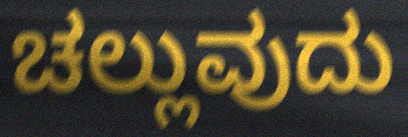
ಚಲ್ಲುವುದು